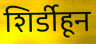
शिर्डीहून